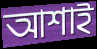
আশাই